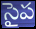
సైప